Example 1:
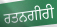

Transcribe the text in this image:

ਰਤਨਗੀਰੀ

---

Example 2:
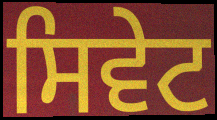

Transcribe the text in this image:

ਸਿਵੇਟ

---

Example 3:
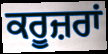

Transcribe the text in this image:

ਕਰੂਜ਼ਰਾਂ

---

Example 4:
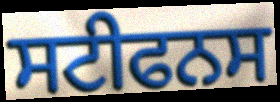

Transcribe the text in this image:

ਸਟੀਫਨਸ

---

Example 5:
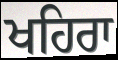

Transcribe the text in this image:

ਖਹਿਰਾ